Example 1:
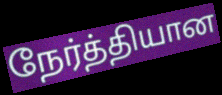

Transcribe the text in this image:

நேர்த்தியான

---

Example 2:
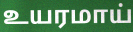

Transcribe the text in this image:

உயரமாய்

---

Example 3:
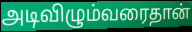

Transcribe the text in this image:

அடிவிழும்வரைதான்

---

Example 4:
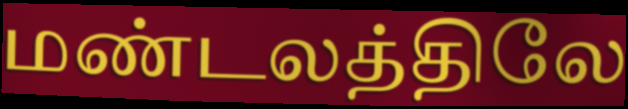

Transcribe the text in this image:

மண்டலத்திலே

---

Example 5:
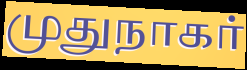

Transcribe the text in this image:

முதுநாகர்